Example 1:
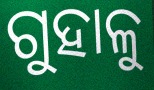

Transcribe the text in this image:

ଗୁହାଳୁ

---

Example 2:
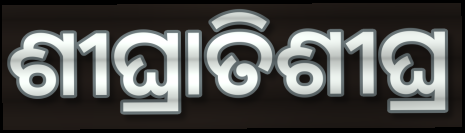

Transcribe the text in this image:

ଶୀଘ୍ରାତିଶୀଘ୍ର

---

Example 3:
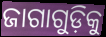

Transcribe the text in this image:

ଜାଗାଗୁଡ଼ିକୁ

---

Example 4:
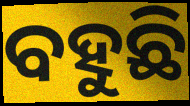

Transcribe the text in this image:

ବହୁଛି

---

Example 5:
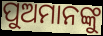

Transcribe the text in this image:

ପୁଅମାନଙ୍କୁ